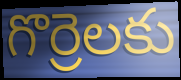
గొర్రెలకు